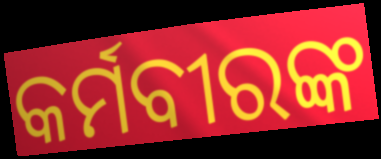
କର୍ମବୀରଙ୍କ